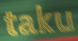
taku